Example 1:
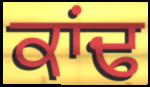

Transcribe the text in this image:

ਕਾਂਢ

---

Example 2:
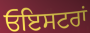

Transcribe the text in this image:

ਓਇਸਟਰਾਂ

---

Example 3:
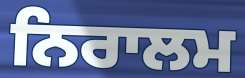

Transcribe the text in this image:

ਨਿਰਾਲਮ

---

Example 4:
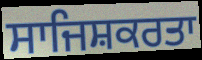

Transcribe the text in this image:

ਸਾਜਿਸ਼ਕਰਤਾ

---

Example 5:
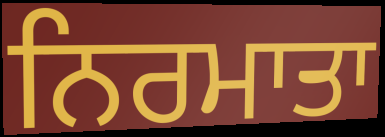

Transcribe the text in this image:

ਨਿਰਮਾਤਾ